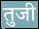
तुजी